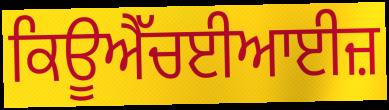
ਕਿਊਐੱਚਈਆਈਜ਼